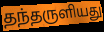
தந்தருளியது